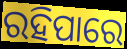
ରହିପାରେ